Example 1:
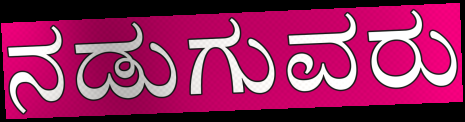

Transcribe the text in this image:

ನಡುಗುವರು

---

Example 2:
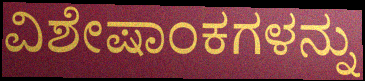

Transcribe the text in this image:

ವಿಶೇಷಾಂಕಗಳನ್ನು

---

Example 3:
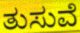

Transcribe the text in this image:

ತುಸುವೆ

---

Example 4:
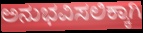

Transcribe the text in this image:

ಅನುಭವಿಸಲಿಕ್ಕಾಗಿ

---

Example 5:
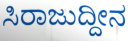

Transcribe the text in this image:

ಸಿರಾಜುದ್ದೀನ